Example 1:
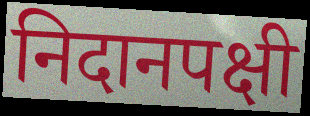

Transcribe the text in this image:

निदानपक्षी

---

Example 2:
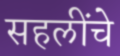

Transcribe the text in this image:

सहलींचे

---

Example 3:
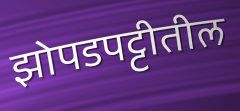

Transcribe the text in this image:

झोपडपट्टीतील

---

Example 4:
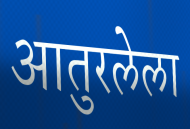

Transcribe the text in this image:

आतुरलेला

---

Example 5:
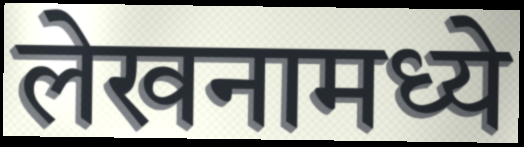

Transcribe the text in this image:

लेखनामध्ये